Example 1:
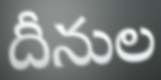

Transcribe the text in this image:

దీనుల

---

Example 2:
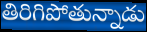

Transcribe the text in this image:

తిరిగిపోతున్నాడు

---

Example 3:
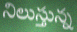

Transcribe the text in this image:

నిలుస్తున్న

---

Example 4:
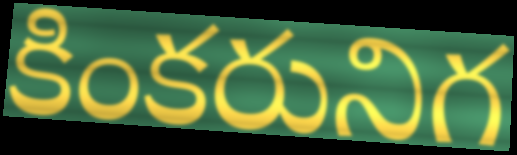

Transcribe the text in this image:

కింకరునిగ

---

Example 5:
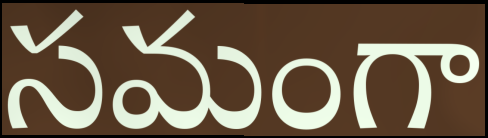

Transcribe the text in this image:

సమంగా